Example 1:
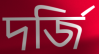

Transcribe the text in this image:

দর্জি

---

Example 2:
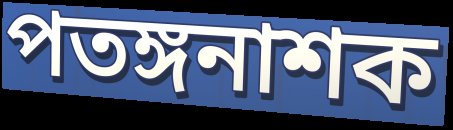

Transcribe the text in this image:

পতঙ্গনাশক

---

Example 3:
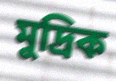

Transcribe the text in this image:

মুদ্রিক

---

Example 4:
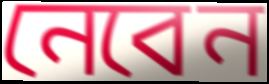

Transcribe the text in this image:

নেবেন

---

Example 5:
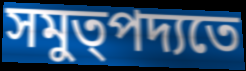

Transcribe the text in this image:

সমুত্পদ্যতে